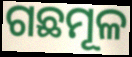
ଗଛମୂଳ